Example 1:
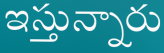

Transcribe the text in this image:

ఇస్తున్నారు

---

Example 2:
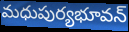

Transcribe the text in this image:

మధుపుర్యభూవన్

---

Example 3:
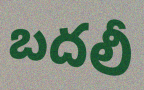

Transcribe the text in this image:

బదలీ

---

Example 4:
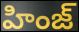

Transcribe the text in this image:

హింజ్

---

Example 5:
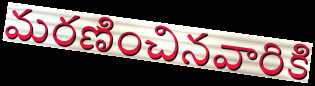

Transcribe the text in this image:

మరణించినవారికి